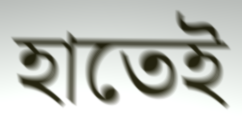
হাতেই